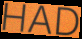
HAD